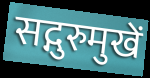
सद्गुरुमुखें